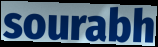
sourabh